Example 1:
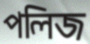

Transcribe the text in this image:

পলিজ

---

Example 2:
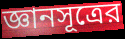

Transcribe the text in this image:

জ্ঞানসূত্রের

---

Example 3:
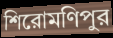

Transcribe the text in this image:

শিরোমণিপুর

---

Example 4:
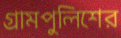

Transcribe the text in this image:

গ্রামপুলিশের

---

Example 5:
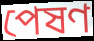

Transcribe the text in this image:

পেষণ